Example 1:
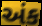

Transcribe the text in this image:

અંક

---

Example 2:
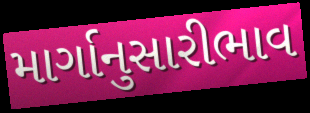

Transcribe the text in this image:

માર્ગાનુસારીભાવ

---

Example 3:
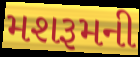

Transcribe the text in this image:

મશરૂમની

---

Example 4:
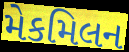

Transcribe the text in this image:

મેકમિલન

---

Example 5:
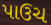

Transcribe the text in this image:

પાઉચ